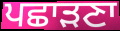
ਪਛਾੜਣਾ